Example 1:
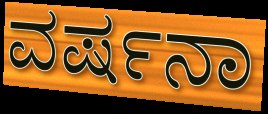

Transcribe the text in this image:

ವರ್ಷನಾ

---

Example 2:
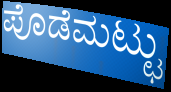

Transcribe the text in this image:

ಪೊಡೆಮಟ್ಟು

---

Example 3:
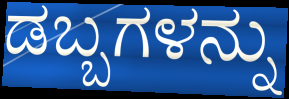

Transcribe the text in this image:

ಡಬ್ಬಗಳನ್ನು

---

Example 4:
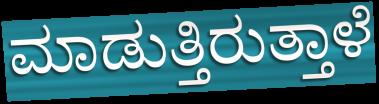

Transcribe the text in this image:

ಮಾಡುತ್ತಿರುತ್ತಾಳೆ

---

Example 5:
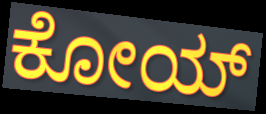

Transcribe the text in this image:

ಕೋಯ್